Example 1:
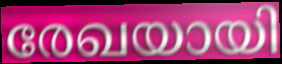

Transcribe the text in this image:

രേഖയായി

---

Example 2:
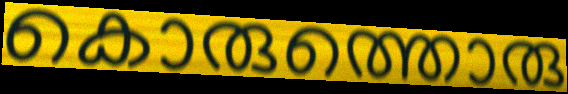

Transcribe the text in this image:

കൊരുത്തൊരു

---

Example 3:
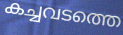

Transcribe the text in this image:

കച്ചവടത്തെ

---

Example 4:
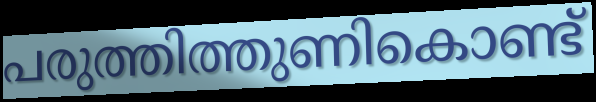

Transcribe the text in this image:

പരുത്തിത്തുണികൊണ്ട്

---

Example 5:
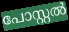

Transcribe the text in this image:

പോസ്റ്റൽ